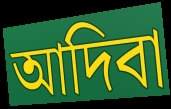
আদিবা